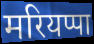
मरियप्पा